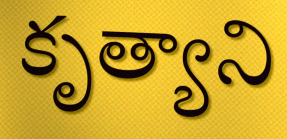
కృత్యాని